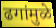
ढगांमुळे